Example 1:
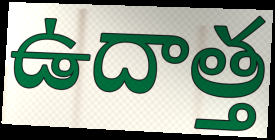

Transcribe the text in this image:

ఉదాత్త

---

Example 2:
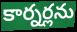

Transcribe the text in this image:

కార్నర్లను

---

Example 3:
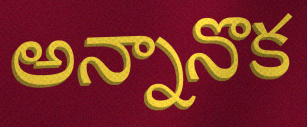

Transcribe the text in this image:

అన్నానొక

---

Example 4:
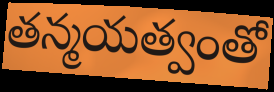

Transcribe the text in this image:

తన్మయత్వంతో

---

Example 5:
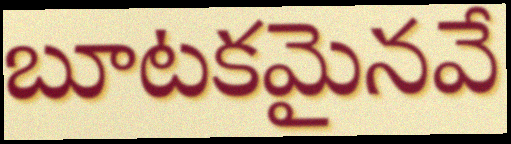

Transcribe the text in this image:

బూటకమైనవే